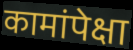
कामांपेक्षा